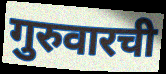
गुरुवारची